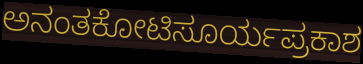
ಅನಂತಕೋಟಿಸೂರ್ಯಪ್ರಕಾಶ